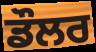
ਡੌਲਰ